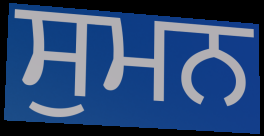
ਸੁਮਨ